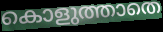
കൊളുത്താതെ